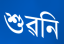
শুৱনি